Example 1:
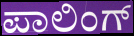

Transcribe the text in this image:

ಪಾಲಿಂಗ್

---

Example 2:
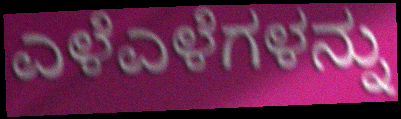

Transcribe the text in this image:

ಎಳೆಎಳೆಗಳನ್ನು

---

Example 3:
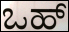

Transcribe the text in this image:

ಒಹ್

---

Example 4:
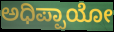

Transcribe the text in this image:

ಅಧಿಪ್ಪಾಯೋ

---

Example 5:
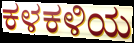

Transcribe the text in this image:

ಕಳಕಳಿಯ